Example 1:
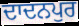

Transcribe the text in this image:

ਦਾਦਨਪੁਰ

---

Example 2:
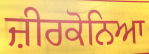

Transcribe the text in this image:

ਜ਼ੀਰਕੋਨਿਆ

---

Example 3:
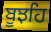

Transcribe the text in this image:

ਬੂਝਹਿ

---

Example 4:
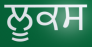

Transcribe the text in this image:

ਲੂਕਸ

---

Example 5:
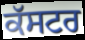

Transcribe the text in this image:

ਕੱਸਟਰ